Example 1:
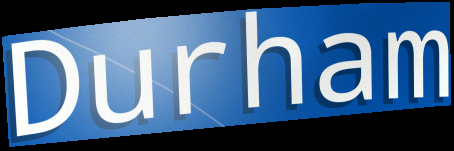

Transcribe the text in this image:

Durham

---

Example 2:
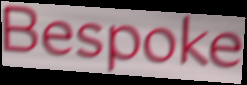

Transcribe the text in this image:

Bespoke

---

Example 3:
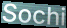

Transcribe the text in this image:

Sochi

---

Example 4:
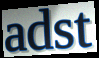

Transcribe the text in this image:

adst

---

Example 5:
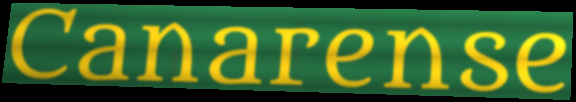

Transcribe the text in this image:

Canarense